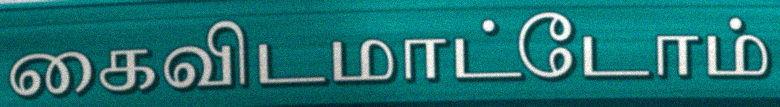
கைவிடமாட்டோம்